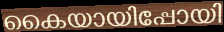
കൈയായിപ്പോയി